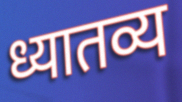
ध्यातव्य